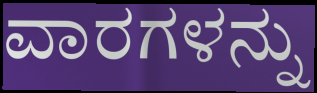
ವಾರಗಳನ್ನು